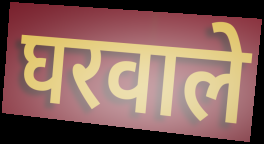
घरवाले